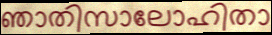
ഞാതിസാലോഹിതാ